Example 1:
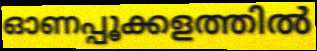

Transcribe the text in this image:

ഓണപ്പൂക്കളത്തിൽ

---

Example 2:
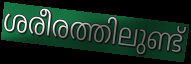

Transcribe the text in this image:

ശരീരത്തിലുണ്ട്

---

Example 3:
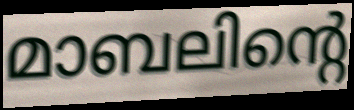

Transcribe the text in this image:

മാബലിന്റെ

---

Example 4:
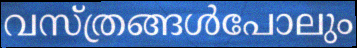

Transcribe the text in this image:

വസ്ത്രങ്ങൾപോലും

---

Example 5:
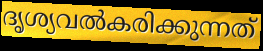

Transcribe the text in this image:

ദൃശ്യവൽകരിക്കുന്നത്